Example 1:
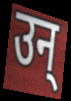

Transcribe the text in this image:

उन्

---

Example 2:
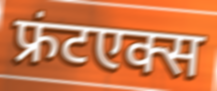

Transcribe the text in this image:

फ्रंटएक्स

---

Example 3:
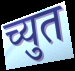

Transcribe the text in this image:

च्‍युत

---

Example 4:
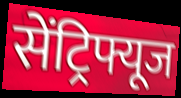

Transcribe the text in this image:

सेंट्रिफ्यूज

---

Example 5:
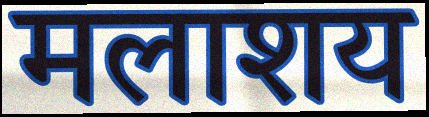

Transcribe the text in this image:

मलाशय